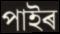
পাইৰ